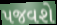
પજવશે